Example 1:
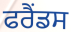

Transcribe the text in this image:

ਫਰੈਂਡਸ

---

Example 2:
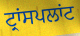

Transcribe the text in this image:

ਟ੍ਰਾਂਸਪਲਾਂਟ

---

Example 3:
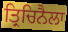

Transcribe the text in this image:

ਤ੍ਰਿਚਿਨੈਲਾ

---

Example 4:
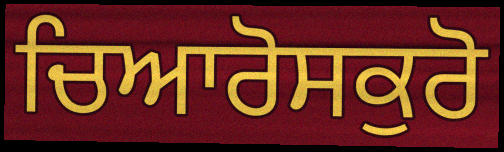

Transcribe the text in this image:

ਚਿਆਰੋਸਕੁਰੋ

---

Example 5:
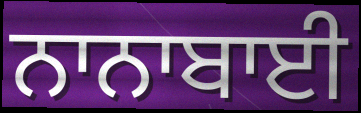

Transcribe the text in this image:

ਨਾਨਾਬਾਈ